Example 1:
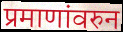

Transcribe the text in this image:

प्रमाणांवरुन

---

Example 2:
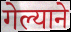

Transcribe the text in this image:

गेल्याने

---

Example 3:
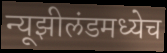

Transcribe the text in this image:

न्यूझीलंडमध्येच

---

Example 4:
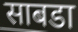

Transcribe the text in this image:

साबडा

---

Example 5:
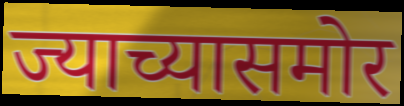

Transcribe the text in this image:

ज्याच्यासमोर